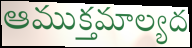
ఆముక్తమాల్యద